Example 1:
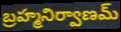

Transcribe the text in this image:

బ్రహ్మనిర్వాణమ్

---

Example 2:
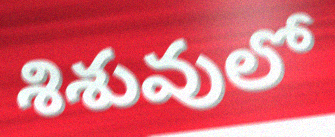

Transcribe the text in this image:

శిశువులో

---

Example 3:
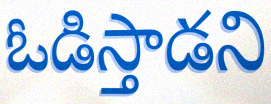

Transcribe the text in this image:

ఓడిస్తాడని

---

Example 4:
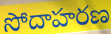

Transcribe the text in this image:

సోదాహరణ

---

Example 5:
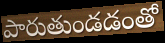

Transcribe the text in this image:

పారుతుండడంతో